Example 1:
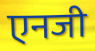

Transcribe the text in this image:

एनजी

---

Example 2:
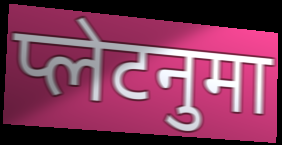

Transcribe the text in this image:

प्लेटनुमा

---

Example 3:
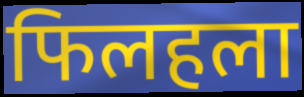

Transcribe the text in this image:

फिलहला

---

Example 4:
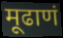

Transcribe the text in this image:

मूढाणं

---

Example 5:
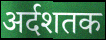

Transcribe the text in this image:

अर्दशतक